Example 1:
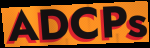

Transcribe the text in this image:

ADCPs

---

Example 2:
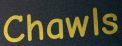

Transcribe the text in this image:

Chawls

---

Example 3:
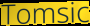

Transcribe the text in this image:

Tomsic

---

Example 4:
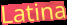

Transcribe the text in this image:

Latina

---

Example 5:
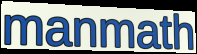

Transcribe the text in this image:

manmath